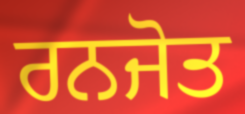
ਰਨਜੋਤ